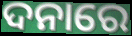
ଦନାରେ